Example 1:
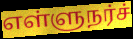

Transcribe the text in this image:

எள்ளுநர்ச்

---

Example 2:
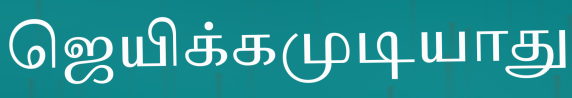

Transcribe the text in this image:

ஜெயிக்கமுடியாது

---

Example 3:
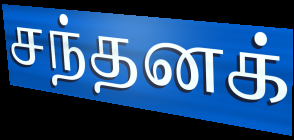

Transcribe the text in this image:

சந்தனக்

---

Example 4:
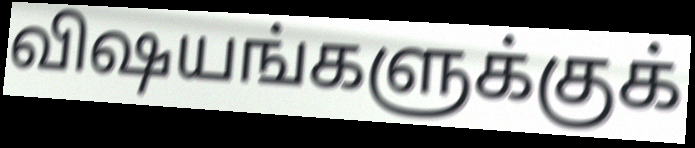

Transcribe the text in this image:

விஷயங்களுக்குக்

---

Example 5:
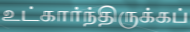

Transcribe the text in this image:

உட்கார்ந்திருக்கப்